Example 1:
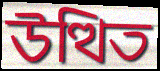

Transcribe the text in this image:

উত্থিত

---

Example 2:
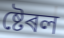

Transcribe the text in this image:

ষ্টেৰল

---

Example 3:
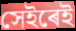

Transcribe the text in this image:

সেইৰেই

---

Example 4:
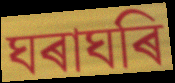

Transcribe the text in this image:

ঘৰাঘৰি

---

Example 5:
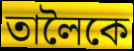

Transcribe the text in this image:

তালৈকে